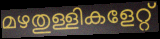
മഴതുള്ളികളേറ്റ്